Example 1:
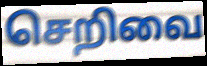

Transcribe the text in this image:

செறிவை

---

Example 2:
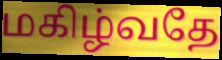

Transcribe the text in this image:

மகிழ்வதே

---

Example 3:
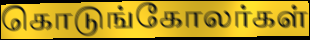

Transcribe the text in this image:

கொடுங்கோலர்கள்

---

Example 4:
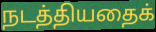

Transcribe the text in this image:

நடத்தியதைக்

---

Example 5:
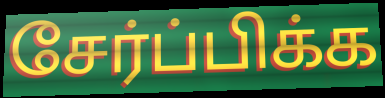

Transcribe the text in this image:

சேர்ப்பிக்க